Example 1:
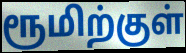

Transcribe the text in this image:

ரூமிற்குள்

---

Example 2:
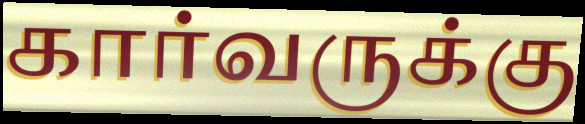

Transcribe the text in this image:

கார்வருக்கு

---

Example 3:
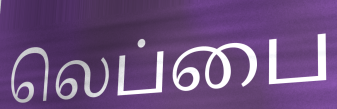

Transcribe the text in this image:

லெப்பை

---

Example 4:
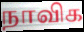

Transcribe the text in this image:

நாவிக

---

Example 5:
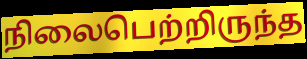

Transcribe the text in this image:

நிலைபெற்றிருந்த